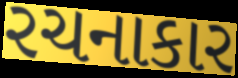
રચનાકાર